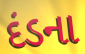
દંડના